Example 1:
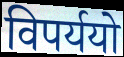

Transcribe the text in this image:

विपर्ययो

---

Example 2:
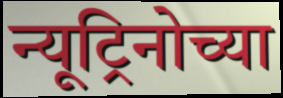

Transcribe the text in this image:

न्यूट्रिनोच्या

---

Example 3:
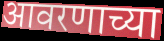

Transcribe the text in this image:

आवरणाच्या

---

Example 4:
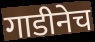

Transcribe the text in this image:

गाडीनेच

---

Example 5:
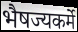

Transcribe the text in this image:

भैषज्यकर्मे